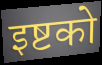
इष्टको